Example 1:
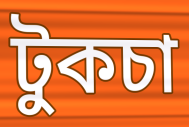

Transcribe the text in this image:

টুকচা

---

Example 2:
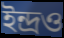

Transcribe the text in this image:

ইন্দ্রও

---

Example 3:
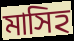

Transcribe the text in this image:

মাসিহ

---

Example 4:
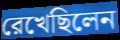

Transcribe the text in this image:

রেখেছিলেন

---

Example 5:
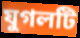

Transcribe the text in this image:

যুগলটি